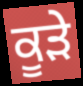
ਕੂੜੇ